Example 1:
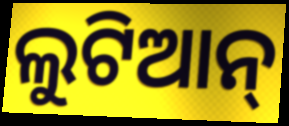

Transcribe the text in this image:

ଲୁଟିଆନ୍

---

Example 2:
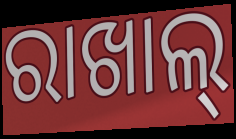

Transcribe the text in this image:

ରାଖାଲ୍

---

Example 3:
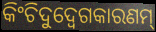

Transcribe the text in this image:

କିଂଚିଦୁଦ୍ବେଗକାରଣମ୍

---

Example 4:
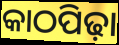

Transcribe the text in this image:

କାଠପିଢ଼ା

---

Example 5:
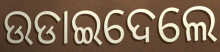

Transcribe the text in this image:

ଉଡାଇଦେଲେ